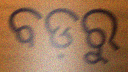
ବଡ଼ରୁ